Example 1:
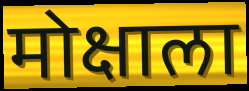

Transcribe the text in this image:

मोक्षाला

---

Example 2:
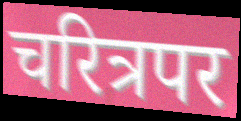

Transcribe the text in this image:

चरित्रपर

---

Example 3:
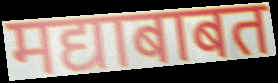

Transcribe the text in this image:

मद्याबाबत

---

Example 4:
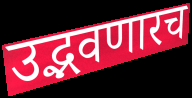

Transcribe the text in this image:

उद्भवणारच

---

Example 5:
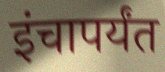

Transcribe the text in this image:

इंचापर्यंत